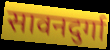
सावनदुर्गा